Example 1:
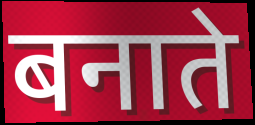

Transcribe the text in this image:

बनाते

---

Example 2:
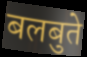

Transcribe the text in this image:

बलबुते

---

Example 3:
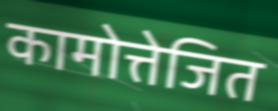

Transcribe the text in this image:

कामोत्तेजित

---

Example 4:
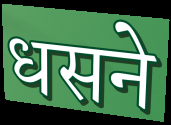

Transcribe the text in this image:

धसने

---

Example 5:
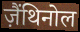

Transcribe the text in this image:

ज़ैंथिनोल